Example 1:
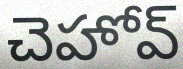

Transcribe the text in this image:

చెహోవ్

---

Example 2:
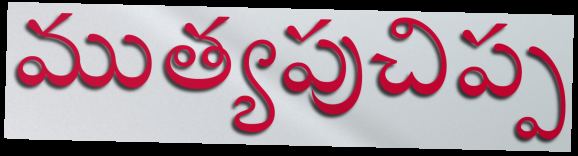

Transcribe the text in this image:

ముత్యపుచిప్ప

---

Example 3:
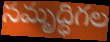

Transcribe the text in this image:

సమృద్ధిగల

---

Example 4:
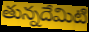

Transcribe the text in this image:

తున్నదేమిటి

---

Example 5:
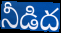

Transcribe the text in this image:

నీడిద